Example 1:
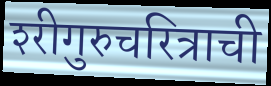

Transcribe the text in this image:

श्रीगुरुचरित्राची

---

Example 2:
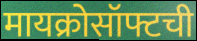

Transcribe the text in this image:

मायक्रोसॉफ्टची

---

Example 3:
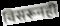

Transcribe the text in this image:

विसरूनही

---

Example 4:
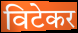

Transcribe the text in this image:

विटेकर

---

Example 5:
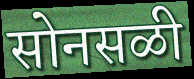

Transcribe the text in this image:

सोनसळी